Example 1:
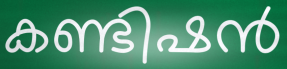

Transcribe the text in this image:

കണ്ടിഷൻ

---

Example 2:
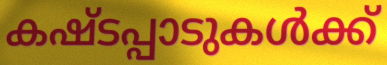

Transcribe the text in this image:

കഷ്ടപ്പാടുകൾക്ക്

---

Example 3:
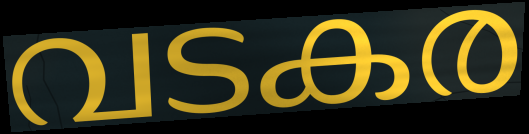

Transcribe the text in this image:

വടകര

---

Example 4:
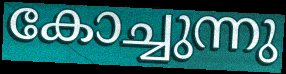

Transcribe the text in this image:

കോച്ചുന്നു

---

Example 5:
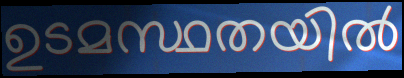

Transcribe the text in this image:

ഉടമസ്ഥതയിൽ